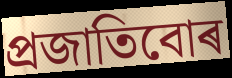
প্ৰজাতিবোৰ